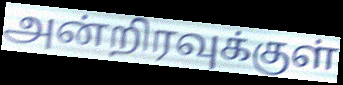
அன்றிரவுக்குள்